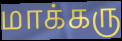
மாக்கரு